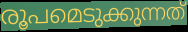
രൂപമെടുക്കുന്നത്